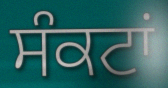
ਸੰਕਟਾਂ